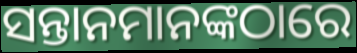
ସନ୍ତାନମାନଙ୍କଠାରେ